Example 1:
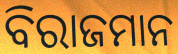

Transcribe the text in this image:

ବିରାଜମାନ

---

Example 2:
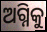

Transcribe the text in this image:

ଅଗ୍ନିକୁ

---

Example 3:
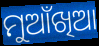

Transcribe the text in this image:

ମୁଆଁଖିଆ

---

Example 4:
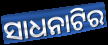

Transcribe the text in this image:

ସାଧନାଟିର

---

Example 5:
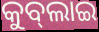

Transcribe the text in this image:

କୁବ୍‌ଲାଇ